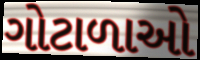
ગોટાળાઓ